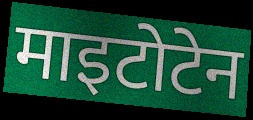
माइटोटेन